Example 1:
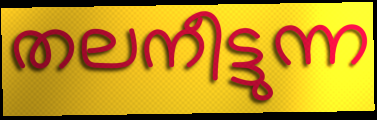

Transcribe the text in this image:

തലനീട്ടുന്ന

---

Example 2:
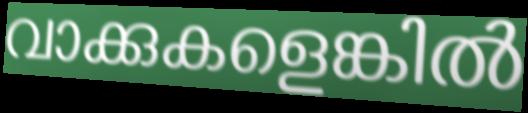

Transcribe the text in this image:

വാക്കുകളെങ്കിൽ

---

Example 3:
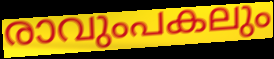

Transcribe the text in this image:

രാവുംപകലും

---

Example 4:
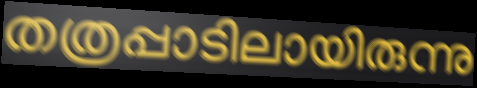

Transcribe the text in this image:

തത്രപ്പാടിലായിരുന്നു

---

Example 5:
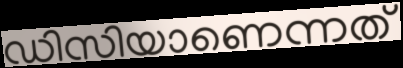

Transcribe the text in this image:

ഡിസിയാണെന്നത്